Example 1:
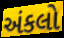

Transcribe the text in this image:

અંકલો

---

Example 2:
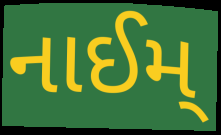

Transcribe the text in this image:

નાઈમ્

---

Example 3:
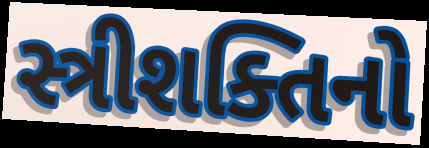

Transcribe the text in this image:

સ્ત્રીશક્તિનો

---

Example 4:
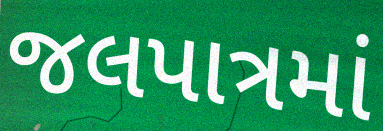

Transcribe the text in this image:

જલપાત્રમાં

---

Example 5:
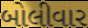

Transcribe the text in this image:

બોલીવાર